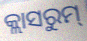
କ୍ଲାସରୁମ୍